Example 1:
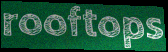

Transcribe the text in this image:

rooftops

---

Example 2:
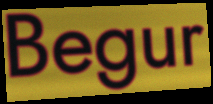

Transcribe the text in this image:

Begur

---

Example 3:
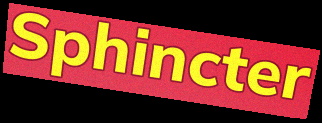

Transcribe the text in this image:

Sphincter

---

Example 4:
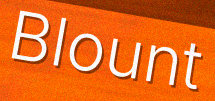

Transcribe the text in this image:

Blount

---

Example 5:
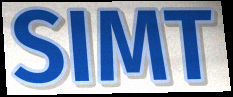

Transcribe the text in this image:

SIMT